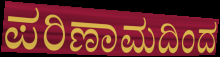
ಪರಿಣಾಮದಿಂದ